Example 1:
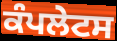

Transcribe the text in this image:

ਕੰਪਲੇਟਸ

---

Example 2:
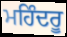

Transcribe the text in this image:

ਮਹਿੰਦਰੂ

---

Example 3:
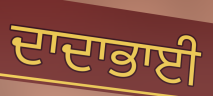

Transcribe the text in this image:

ਦਾਦਾਭਾਈ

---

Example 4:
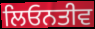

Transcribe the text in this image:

ਲਿਓਨਤੀਵ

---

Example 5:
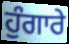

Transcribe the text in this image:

ਹੁੰਗਾਰੇ